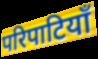
परिपाटियाँ